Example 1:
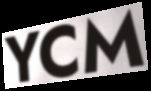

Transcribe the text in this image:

YCM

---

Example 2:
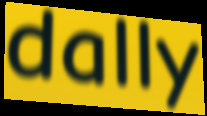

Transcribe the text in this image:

dally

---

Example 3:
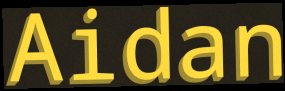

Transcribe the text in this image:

Aidan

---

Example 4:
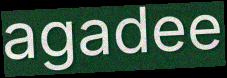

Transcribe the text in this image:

agadee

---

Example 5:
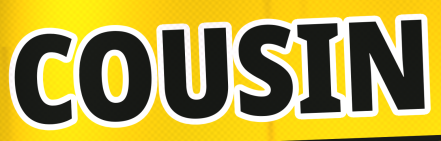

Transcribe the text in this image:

COUSIN